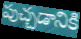
పుచ్చడానికి